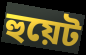
হুয়েট